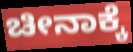
ಚೀನಾಕ್ಕೆ